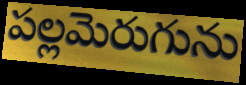
పల్లమెరుగును